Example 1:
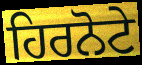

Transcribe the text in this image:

ਹਿਰਨੋਟੇ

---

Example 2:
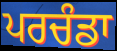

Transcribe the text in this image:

ਪਰਚੰਡਾ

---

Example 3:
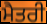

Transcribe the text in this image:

ਮੈਤਰੀ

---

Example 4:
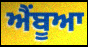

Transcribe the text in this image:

ਐਂਬੂਆ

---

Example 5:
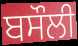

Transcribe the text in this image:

ਬਸੌਲੀ